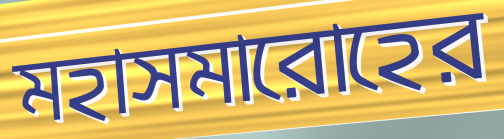
মহাসমারোহের